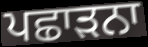
ਪਛਾੜਨਾ